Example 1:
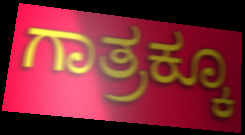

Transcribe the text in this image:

ಗಾತ್ರಕ್ಕೂ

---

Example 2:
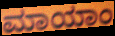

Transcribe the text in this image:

ಮಾಯಾಂ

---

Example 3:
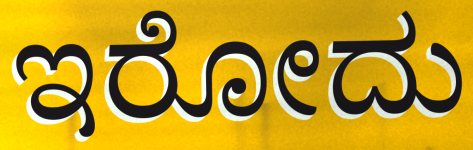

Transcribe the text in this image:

ಇರೋದು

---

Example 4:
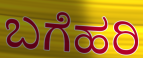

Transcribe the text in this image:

ಬಗೆಹರಿ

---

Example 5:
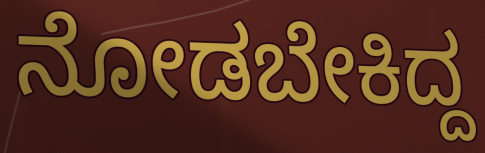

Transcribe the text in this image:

ನೋಡಬೇಕಿದ್ದ